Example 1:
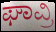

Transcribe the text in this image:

ಘಾವ್ರಿ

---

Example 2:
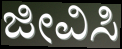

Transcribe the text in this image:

ಜೀವಿಸಿ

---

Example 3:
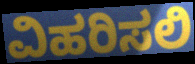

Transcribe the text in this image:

ವಿಹರಿಸಲಿ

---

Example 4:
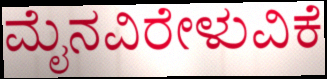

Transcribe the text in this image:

ಮೈನವಿರೇಳುವಿಕೆ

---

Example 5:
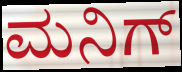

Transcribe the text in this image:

ಮನಿಗ್